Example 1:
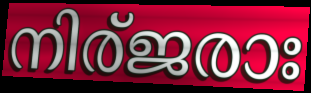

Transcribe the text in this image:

നിര്ജരാഃ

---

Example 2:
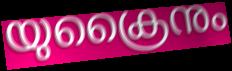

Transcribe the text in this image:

യുക്രൈനും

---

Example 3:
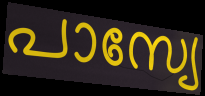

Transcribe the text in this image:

പാസ്യേ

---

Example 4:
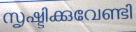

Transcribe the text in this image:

സൃഷ്ടിക്കുവേണ്ടി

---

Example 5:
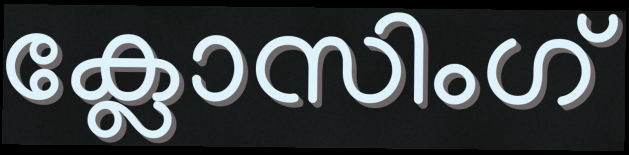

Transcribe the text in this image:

ക്ലോസിംഗ്